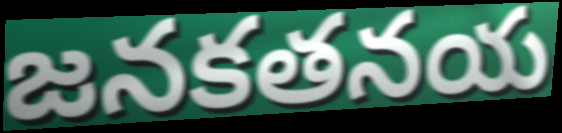
జనకతనయ